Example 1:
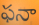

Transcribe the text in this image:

ఫనా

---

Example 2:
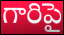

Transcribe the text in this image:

గారిపై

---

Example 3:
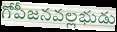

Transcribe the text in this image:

గోపీజనవల్లభుడు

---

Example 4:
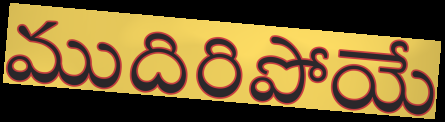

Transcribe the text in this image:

ముదిరిపోయే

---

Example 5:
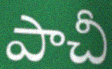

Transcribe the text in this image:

పాచీ